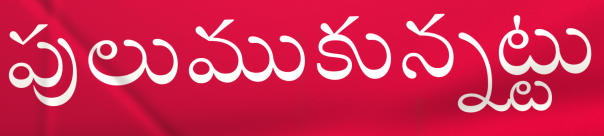
పులుముకున్నట్టు